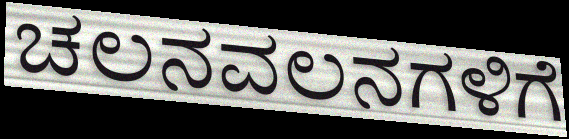
ಚಲನವಲನಗಳಿಗೆ